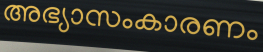
അഭ്യാസംകാരണം